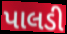
પાલડી